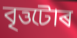
বৃত্তটোৰ